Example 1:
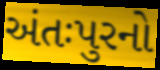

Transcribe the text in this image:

અંતઃપુરનો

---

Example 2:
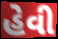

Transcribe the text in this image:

હેવી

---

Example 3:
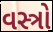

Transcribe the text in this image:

વસ્ત્રો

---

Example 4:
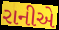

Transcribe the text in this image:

રાનીએ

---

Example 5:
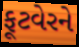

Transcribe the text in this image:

ફૂટવેરને